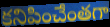
కనిపించేంతగా